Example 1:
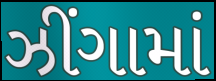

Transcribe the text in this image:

ઝીંગામાં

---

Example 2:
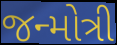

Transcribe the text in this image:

જન્મોત્રી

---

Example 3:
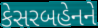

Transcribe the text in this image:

કેસરબહેનને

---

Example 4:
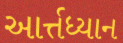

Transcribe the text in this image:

આર્ત્તધ્યાન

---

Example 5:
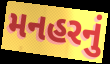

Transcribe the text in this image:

મનહરનું